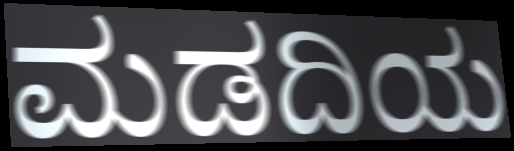
ಮಡದಿಯ